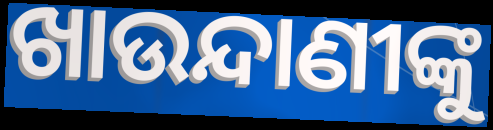
ଖାଉନ୍ଦାଣୀଙ୍କୁ